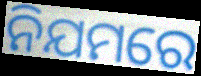
ନିଯମରେ